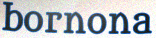
bornona